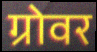
ग्रोवर